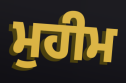
ਮੁਹੀਮ